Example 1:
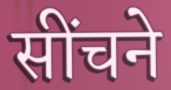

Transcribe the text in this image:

सींचने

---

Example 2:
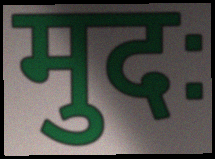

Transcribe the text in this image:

मुदः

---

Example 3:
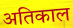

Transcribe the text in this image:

अतिकाल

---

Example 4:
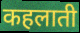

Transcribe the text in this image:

कहलाती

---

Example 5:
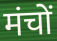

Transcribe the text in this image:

मंचों